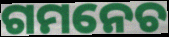
ଗମନେଚ